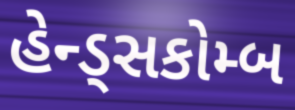
હેન્ડ્સકોમ્બ